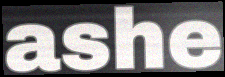
ashe